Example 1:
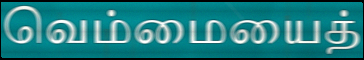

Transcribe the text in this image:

வெம்மையைத்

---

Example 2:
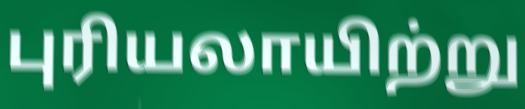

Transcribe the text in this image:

புரியலாயிற்று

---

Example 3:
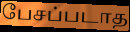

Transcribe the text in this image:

பேசப்படாத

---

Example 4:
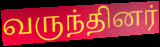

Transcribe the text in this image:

வருந்தினர்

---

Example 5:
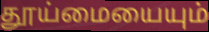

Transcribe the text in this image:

தூய்மையையும்